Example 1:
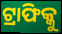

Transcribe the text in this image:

ଟ୍ରାଫିକ୍କୁ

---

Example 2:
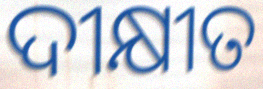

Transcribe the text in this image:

ଦୀକ୍ଷୀତ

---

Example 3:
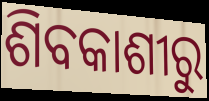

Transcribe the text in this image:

ଶିବକାଶୀରୁ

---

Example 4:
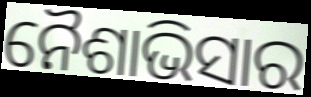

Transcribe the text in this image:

ନୈଶାଭିସାର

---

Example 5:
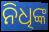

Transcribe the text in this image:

ନିଧିଙ୍କ